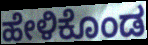
ಹೇಳಿಕೊಂಡ